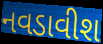
નવડાવીશ